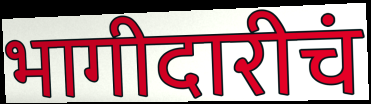
भागीदारीचं